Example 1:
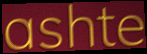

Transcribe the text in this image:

ashte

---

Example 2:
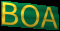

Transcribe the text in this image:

BOA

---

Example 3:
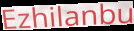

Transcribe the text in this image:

Ezhilanbu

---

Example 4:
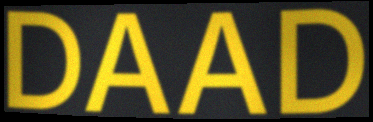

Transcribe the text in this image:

DAAD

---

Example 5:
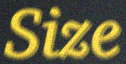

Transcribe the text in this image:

Size